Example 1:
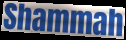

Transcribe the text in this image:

Shammah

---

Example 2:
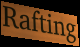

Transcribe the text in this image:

Rafting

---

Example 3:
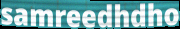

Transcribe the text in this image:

samreedhdho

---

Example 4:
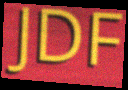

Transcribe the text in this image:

JDF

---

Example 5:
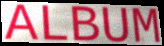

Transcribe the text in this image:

ALBUM